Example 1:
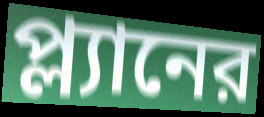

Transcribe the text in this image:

প্ল্যানের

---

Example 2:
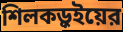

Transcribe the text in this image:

শিলকড়ুইয়ের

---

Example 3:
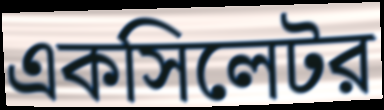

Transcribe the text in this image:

একসিলেটর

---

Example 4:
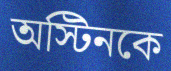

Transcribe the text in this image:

অস্টিনকে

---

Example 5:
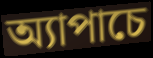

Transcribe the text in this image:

অ্যাপাচে